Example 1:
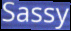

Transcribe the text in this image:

Sassy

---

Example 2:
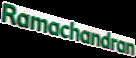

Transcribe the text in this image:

Ramachandran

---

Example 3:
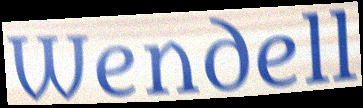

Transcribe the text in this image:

Wendell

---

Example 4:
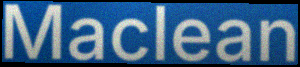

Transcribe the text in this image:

Maclean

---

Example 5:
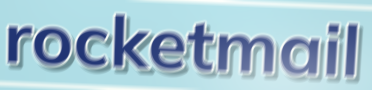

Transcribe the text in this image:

rocketmail